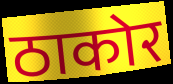
ठाकोर